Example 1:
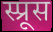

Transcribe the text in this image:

स्प्रूस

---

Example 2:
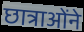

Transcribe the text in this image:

छात्राओंने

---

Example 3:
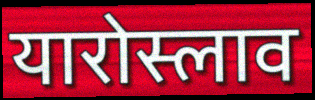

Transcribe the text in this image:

यारोस्लाव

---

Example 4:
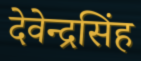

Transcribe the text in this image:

देवेन्द्रसिंह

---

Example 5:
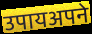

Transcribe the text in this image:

उपायअपने